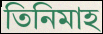
তিনিমাহ